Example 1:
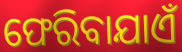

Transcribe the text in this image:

ଫେରିବାଯାଏଁ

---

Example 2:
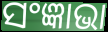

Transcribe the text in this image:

ସଂଜ୍ଞାଭା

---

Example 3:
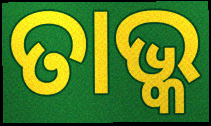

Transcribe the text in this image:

ତାଭ୍କ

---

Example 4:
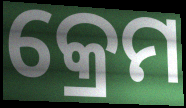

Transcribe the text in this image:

କ୍ରେମ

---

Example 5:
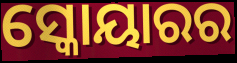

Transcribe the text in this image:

ସ୍କୋୟାରର